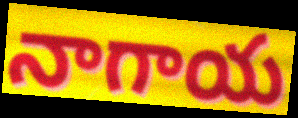
నాగాయ